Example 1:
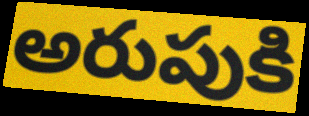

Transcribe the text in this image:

అరుపుకి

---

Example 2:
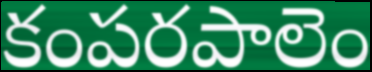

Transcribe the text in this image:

కంపరపాలెం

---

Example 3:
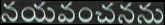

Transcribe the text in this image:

నయవంచనను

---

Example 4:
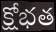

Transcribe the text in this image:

క్షోభత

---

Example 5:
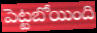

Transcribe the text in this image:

పెట్టబోయింది